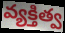
వ్యక్తిత్వ